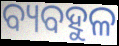
ବ୍ୟବହୁଳ